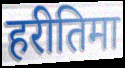
हरीतिमा